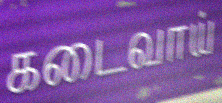
கடைவாய்